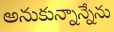
అనుకున్నాన్నేను